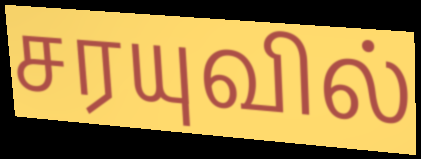
சரயுவில்